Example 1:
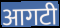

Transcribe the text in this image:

आगटी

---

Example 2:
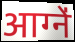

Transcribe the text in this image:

आग्ने॑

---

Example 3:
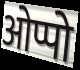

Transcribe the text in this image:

ओप्पो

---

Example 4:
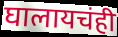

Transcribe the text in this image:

घालायचंही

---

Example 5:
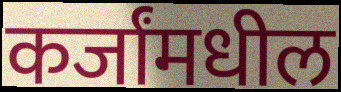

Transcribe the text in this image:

कर्जांमधील